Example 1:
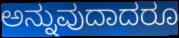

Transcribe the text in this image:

ಅನ್ನುವುದಾದರೂ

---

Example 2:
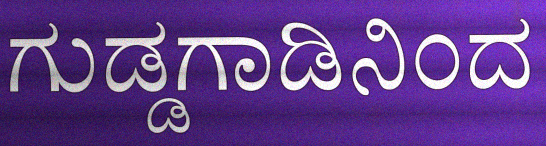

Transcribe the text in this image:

ಗುಡ್ಡಗಾಡಿನಿಂದ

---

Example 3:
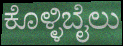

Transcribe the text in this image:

ಕೊಳ್ಳಿಬೈಲು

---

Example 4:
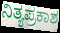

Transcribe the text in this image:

ನಿತ್ಯಪ್ರಕಾಶ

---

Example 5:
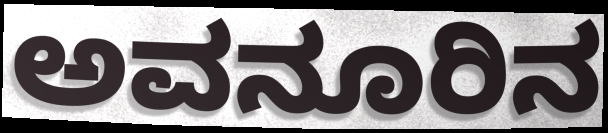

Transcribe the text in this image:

ಅವನೂರಿನ